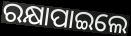
ରକ୍ଷାପାଇଲେ